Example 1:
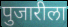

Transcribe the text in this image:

पुजारीला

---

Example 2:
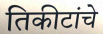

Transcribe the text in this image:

तिकीटांचे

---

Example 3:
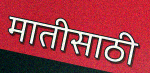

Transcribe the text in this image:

मातीसाठी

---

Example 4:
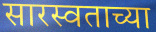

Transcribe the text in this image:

सारस्वताच्या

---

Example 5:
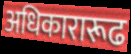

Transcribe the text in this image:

अधिकारारूढ